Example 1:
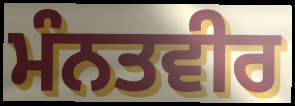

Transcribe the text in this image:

ਮੰਨਤਵੀਰ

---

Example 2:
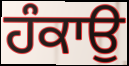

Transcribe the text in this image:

ਹੰਕਾਉ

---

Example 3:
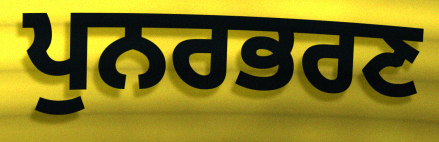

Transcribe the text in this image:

ਪੁਨਰਭਰਣ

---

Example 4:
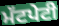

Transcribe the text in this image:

ਮੱਟਪੇਟੀ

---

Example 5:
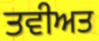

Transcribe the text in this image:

ਤਵੀਅਤ